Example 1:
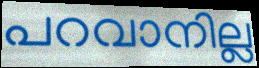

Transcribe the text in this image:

പറവാനില്ല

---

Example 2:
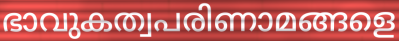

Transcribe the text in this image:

ഭാവുകത്വപരിണാമങ്ങളെ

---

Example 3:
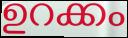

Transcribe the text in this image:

ഉറക്കം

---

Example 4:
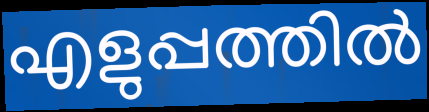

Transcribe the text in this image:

എളുപ്പത്തിൽ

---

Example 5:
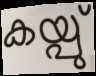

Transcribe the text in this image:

കയ്പു്